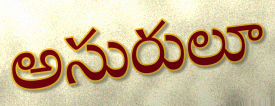
అసురులూ